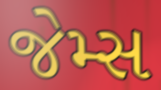
જેમ્સ